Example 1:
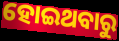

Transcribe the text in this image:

ହୋଇଥବାରୁ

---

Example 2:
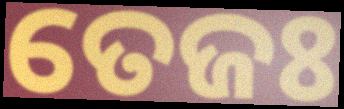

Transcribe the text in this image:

ତେଜଃ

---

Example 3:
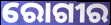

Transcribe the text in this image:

ରୋଗୀର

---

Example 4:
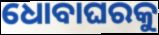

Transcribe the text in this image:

ଧୋବାଘରକୁ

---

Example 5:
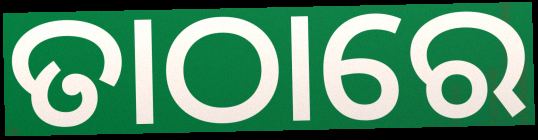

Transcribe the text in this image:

ତାଠାରେ